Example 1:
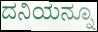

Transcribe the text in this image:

ದನಿಯನ್ನೂ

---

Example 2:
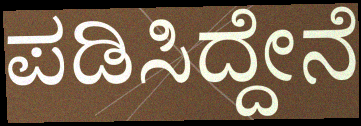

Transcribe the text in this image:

ಪಡಿಸಿದ್ದೇನೆ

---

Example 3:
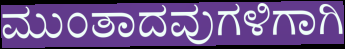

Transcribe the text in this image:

ಮುಂತಾದವುಗಳಿಗಾಗಿ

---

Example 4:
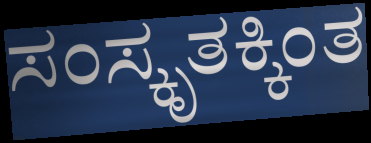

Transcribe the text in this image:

ಸಂಸ್ಕೃತಕ್ಕಿಂತ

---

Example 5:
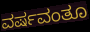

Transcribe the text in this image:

ವರ್ಷವಂತೂ